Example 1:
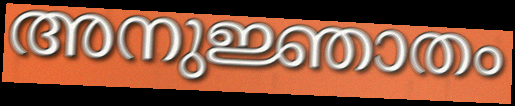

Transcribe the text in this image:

അനുജ്ഞാതം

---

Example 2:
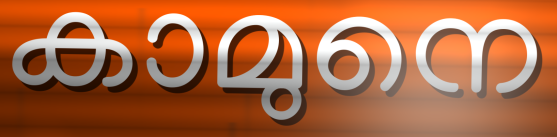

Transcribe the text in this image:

കാമുനെ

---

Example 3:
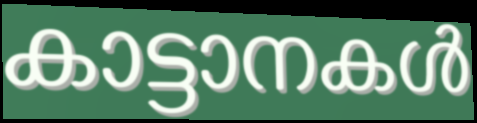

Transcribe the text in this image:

കാട്ടാനകൾ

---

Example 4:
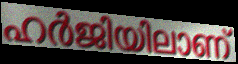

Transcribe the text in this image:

ഹർജിയിലാണ്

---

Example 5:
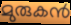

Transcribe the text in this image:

മുരുകൻ